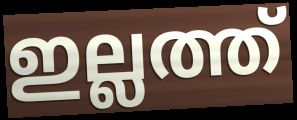
ഇല്ലത്ത്